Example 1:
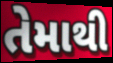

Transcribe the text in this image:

તેમાથી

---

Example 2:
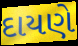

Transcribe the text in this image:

દાયણે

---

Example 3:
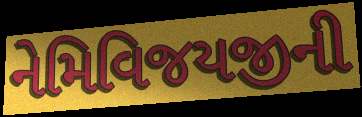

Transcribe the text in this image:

નેમિવિજયજીની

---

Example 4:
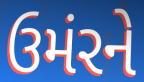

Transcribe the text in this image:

ઉમંરને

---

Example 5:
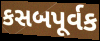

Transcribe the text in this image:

કસબપૂર્વક